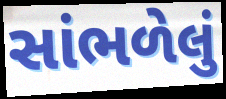
સાંભળેલું